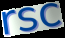
rsc